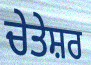
ਚੇਤੇਸ਼ਰ